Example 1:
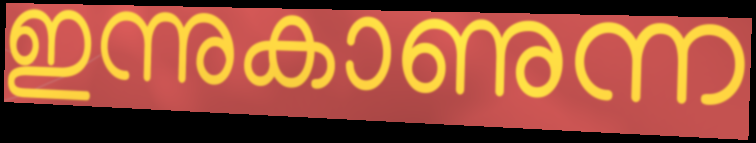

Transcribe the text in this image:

ഇന്നുകാണുന്ന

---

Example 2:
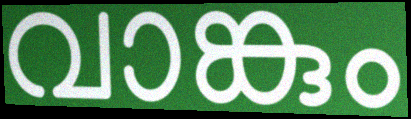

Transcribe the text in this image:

വാങ്കും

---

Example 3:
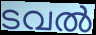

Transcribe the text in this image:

ടവൽ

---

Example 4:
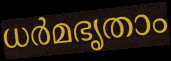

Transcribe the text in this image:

ധർമഭൃതാം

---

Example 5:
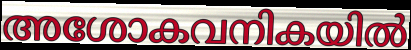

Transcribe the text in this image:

അശോകവനികയിൽ